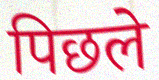
पिछले